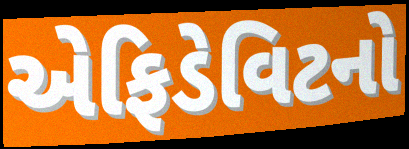
એફિડેવિટનો